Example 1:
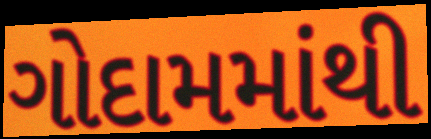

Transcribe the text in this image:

ગોદામમાંથી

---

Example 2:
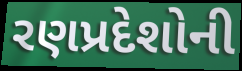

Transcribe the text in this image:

રણપ્રદેશોની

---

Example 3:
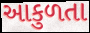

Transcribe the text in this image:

આકુળતા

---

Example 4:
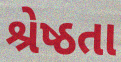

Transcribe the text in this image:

શ્રેષ્ઠતા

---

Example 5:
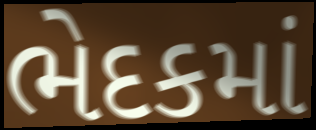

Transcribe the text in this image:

ભેદકમાં